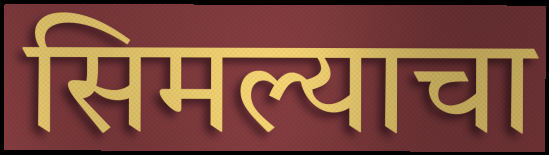
सिमल्याचा